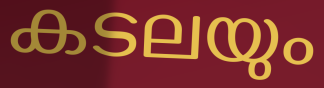
കടലയും